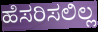
ಹೆಸರಿಸಲಿಲ್ಲ